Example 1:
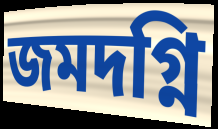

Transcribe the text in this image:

জমদগ্নি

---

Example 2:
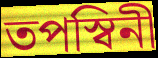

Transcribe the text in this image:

তপস্বিনী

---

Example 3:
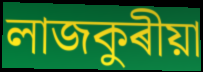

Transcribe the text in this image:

লাজকুৰীয়া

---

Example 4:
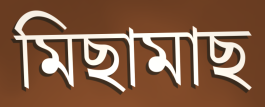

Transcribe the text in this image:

মিছামাছ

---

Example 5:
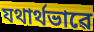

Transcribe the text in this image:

যথাৰ্থভাৱে